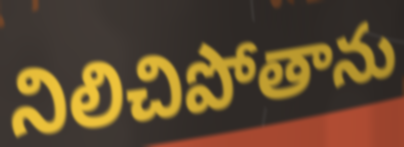
నిలిచిపోతాను